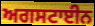
ਅਗਸਟਾਈਨ